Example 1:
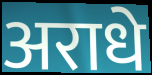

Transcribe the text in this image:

अराधे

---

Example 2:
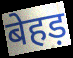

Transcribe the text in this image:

बेहड़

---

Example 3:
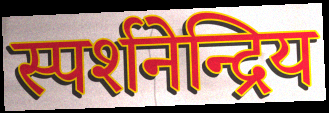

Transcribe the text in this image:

स्पर्शनेन्द्रिय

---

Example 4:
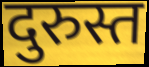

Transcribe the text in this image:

दुरुस्त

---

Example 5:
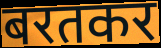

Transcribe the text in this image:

बरतकर